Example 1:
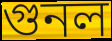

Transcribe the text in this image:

গুনল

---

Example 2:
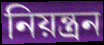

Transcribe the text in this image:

নিয়ন্ত্রন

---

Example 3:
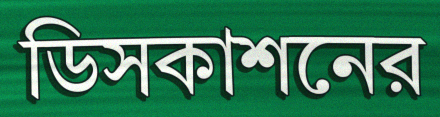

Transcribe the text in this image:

ডিসকাশনের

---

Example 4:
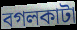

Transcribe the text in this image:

বগলকাটা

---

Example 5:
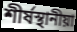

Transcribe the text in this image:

শীর্ষস্থানীয়া